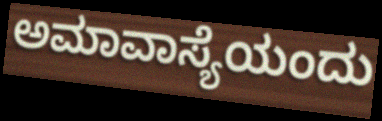
ಅಮಾವಾಸ್ಯೆಯಂದು